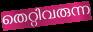
തെറ്റിവരുന്ന